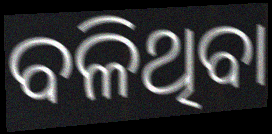
ବଳିଥିବା